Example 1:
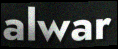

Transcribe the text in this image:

alwar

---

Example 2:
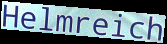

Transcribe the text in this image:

Helmreich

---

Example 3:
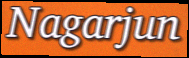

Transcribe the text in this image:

Nagarjun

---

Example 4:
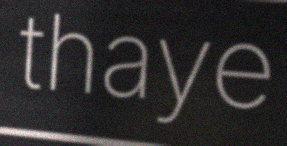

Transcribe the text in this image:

thaye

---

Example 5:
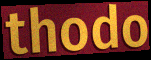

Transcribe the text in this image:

thodo